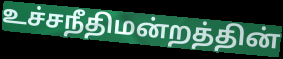
உச்சநீதிமன்றத்தின்